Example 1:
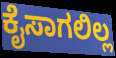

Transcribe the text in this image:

ಕೈಸಾಗಲಿಲ್ಲ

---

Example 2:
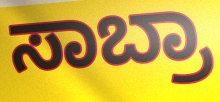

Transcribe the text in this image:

ಸಾಬ್ರಾ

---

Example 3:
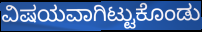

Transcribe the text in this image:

ವಿಷಯವಾಗಿಟ್ಟುಕೊಂಡು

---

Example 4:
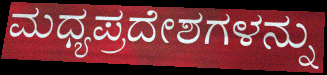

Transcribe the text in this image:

ಮಧ್ಯಪ್ರದೇಶಗಳನ್ನು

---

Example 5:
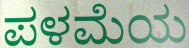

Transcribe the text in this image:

ಪಳಮೆಯ